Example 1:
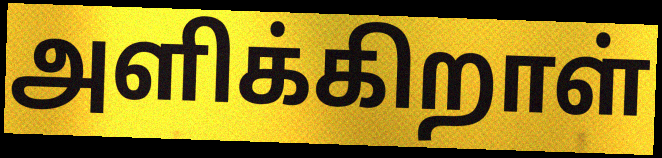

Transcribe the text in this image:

அளிக்கிறாள்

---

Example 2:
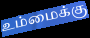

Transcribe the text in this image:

உம்மைக்கு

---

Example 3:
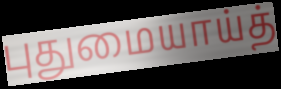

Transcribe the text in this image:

புதுமையாய்த்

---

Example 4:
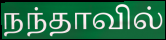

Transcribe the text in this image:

நந்தாவில்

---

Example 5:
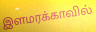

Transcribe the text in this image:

இளமரக்காவில்